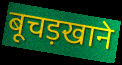
बूचड़खाने